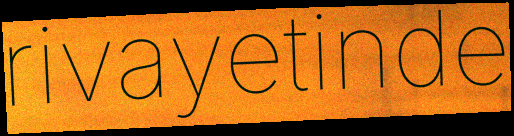
rivayetinde